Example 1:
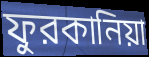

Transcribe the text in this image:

ফুরকানিয়া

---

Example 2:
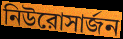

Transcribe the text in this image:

নিউরোসার্জন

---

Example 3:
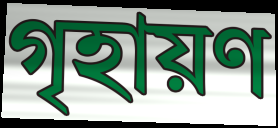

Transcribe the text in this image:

গৃহায়ণ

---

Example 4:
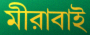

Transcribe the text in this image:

মীরাবাই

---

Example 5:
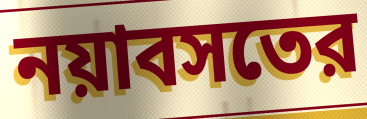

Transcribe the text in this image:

নয়াবসতের